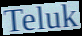
Teluk